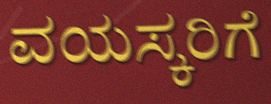
ವಯಸ್ಕರಿಗೆ